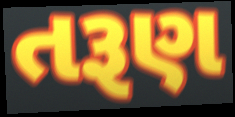
તરૂણ